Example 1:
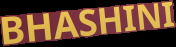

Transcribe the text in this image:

BHASHINI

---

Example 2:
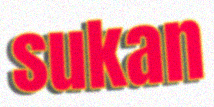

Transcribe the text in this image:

sukan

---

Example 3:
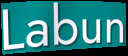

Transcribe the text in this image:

Labun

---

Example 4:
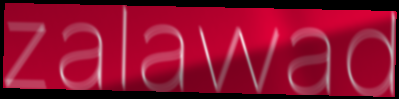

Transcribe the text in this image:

zalawad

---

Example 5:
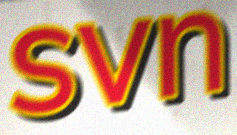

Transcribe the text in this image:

svn